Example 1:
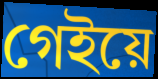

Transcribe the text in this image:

গেইয়ে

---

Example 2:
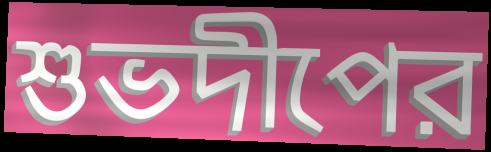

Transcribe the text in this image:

শুভদীপের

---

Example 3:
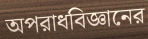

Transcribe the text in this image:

অপরাধবিজ্ঞানের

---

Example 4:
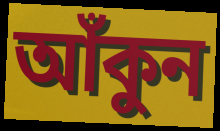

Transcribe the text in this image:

আঁকুন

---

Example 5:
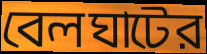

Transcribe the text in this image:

বেলঘাটের